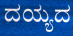
ದಯ್ಯದ